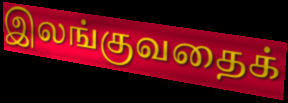
இலங்குவதைக்